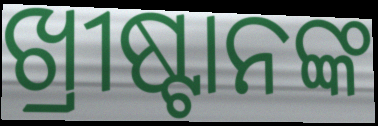
ଖ୍ରୀଷ୍ଟାନଙ୍କ